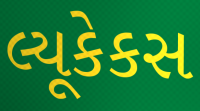
લ્યૂકેકસ